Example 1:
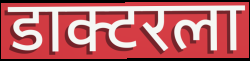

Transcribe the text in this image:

डाक्टरला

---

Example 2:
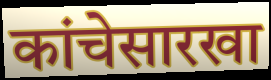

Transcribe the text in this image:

कांचेसारखा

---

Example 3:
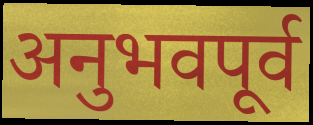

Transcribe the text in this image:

अनुभवपूर्व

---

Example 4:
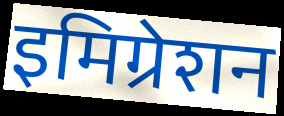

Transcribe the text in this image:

इमिग्रेशन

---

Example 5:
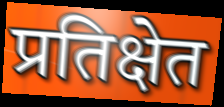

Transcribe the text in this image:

प्रतिक्षेत